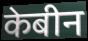
केबीन